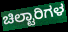
ಚಿಲ್ಟಾರಿಗಳ